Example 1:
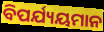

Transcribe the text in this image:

ବିପର୍ଯ୍ୟୟମାନ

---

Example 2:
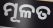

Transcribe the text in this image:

ମୂଳତ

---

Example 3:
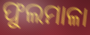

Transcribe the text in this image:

ଫୁଲମାଳା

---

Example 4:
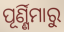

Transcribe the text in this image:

ପୂର୍ଣ୍ଣିମାରୁ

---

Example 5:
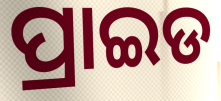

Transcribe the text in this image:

ପ୍ରାଇଡ